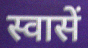
स्वासें